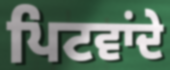
ਪਿਟਵਾਂਦੇ